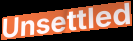
Unsettled